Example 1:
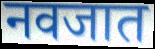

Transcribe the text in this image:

नवजात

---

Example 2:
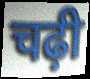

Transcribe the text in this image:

चढ़ी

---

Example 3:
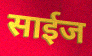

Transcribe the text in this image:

साईज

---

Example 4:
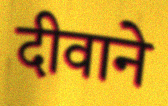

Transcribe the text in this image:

दीवाने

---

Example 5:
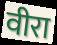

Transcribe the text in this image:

वीरा